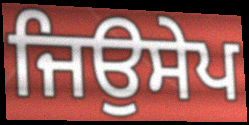
ਜਿਉਸੇਪ